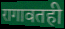
रागावतही